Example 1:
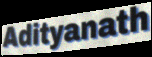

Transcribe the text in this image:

Adityanath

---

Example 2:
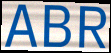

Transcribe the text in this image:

ABR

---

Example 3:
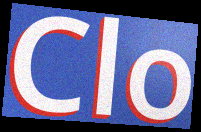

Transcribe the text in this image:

Clo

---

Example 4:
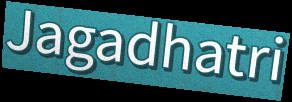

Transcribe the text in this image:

Jagadhatri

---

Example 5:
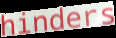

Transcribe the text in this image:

hinders